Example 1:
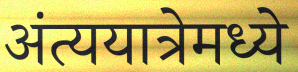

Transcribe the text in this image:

अंत्ययात्रेमध्ये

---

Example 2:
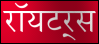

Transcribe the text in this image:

रॉयटर्स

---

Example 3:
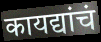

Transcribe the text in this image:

कायद्यांचं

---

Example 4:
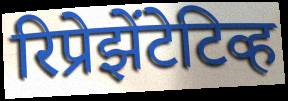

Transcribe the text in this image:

रिप्रेझेंटेटिव्ह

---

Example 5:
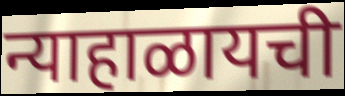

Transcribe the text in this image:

न्याहाळायची